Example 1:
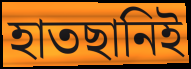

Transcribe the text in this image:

হাতছানিই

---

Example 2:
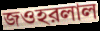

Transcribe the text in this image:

জওহরলাল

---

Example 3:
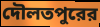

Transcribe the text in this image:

দৌলতপুরের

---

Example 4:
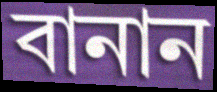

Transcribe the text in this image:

বানান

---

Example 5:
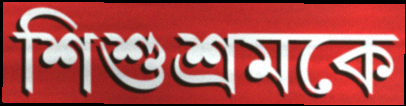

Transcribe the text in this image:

শিশুশ্রমকে